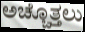
ಅಚ್ಚೊತ್ತಲು